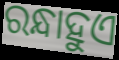
ରନ୍ଧାହୁଏ